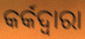
କର୍କଦ୍ଵାରା